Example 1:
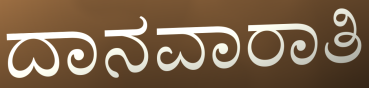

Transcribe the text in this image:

ದಾನವಾರಾತಿ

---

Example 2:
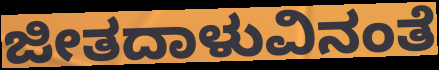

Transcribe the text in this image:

ಜೀತದಾಳುವಿನಂತೆ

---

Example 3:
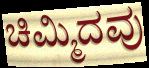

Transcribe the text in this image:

ಚಿಮ್ಮಿದವು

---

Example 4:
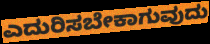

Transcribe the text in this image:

ಎದುರಿಸಬೇಕಾಗುವುದು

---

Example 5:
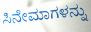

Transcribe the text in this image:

ಸಿನೇಮಾಗಳನ್ನು